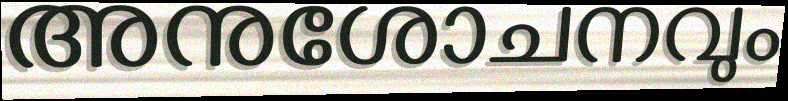
അനുശോചനവും